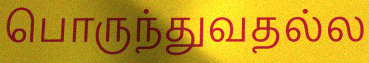
பொருந்துவதல்ல